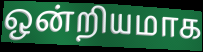
ஒன்றியமாக